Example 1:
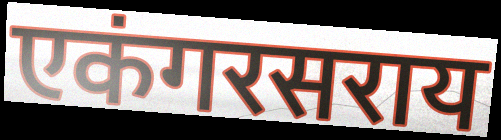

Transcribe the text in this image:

एकंगरसराय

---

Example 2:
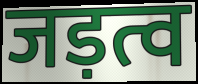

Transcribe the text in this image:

जड़त्व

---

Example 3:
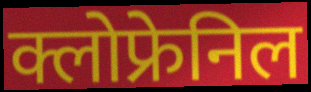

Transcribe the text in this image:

क्लोफ्रेनिल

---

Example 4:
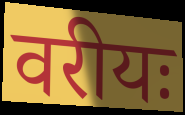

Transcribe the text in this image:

वरीयः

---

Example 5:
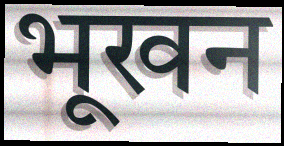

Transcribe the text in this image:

भूखन